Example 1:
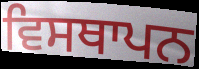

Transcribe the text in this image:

ਵਿਸਥਾਪਨ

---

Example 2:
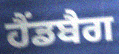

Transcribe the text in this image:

ਹੈਂਡਬੈਗ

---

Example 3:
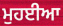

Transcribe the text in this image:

ਮੁਹਈਆ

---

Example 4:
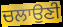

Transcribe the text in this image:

ਚਲਾਉਣੀ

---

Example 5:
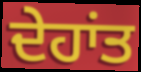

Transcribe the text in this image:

ਦੇਹਾਂਤ